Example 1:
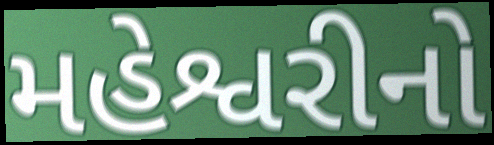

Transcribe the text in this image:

મહેશ્વરીનો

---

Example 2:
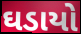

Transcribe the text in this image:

ઘડાયો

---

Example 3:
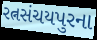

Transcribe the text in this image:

રત્નસંચયપુરના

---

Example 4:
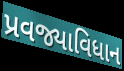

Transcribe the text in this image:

પ્રવજ્યાવિધાન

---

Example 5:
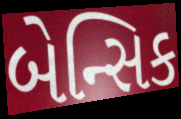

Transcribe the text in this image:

બેન્સિક